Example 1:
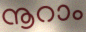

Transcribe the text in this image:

നൂറാം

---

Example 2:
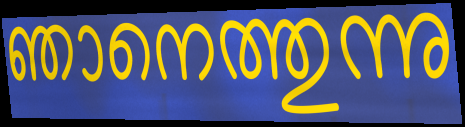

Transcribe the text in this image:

ഞാനെത്തുന്നു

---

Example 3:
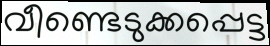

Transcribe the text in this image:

വീണ്ടെടുക്കപ്പെട്ട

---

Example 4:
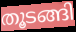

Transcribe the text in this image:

തൂടങ്ങി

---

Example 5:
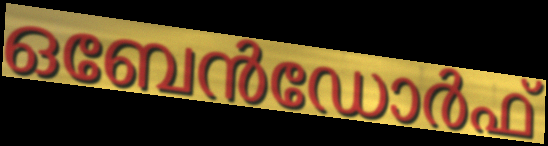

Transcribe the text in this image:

ഒബേൻഡോർഫ്